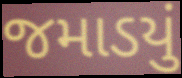
જમાડયું